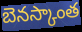
బెనస్కాంత